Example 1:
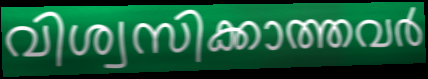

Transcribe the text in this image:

വിശ്വസിക്കാത്തവർ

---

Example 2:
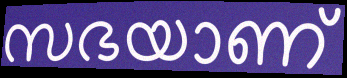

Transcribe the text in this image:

സഭയാണ്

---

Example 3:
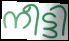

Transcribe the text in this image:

നീട്ടി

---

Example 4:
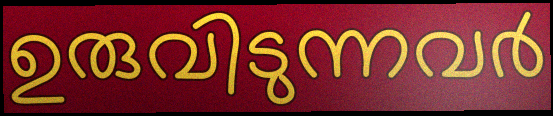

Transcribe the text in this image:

ഉരുവിടുന്നവർ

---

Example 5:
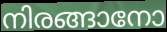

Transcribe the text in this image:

നിരങ്ങാനോ